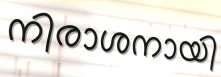
നിരാശനായി